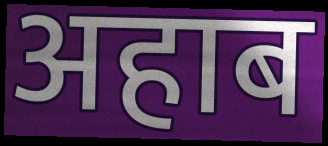
अहाब